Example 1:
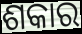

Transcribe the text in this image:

ଶକାର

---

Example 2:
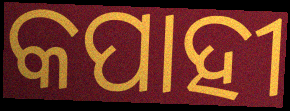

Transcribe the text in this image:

କପାହୀ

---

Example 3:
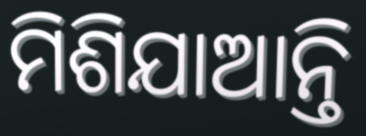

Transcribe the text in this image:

ମିଶିଯାଆନ୍ତି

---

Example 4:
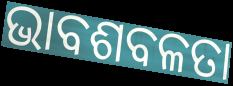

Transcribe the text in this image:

ଭାବଶବଳତା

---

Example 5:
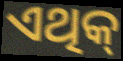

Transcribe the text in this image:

ଏଥିକ୍